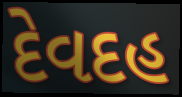
દેવદહ